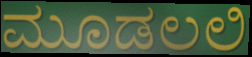
ಮೂಡಲಲಿ